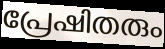
പ്രേഷിതരും